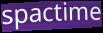
spactime